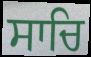
ਸਾਚਿ